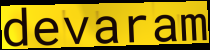
devaram